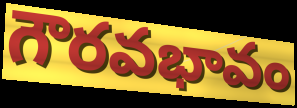
గౌరవభావం